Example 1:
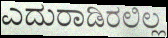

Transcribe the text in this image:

ಎದುರಾಡಿರಲಿಲ್ಲ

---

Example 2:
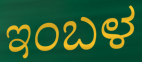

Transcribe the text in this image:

ಇಂಬಳ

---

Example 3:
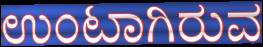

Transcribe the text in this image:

ಉಂಟಾಗಿರುವ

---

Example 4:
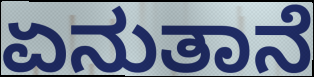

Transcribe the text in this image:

ಏನುತಾನೆ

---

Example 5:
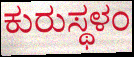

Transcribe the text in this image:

ಕುರುಸ್ಥಳಂ